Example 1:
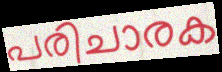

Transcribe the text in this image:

പരിചാരക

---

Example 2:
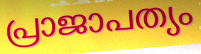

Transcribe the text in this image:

പ്രാജാപത്യം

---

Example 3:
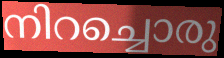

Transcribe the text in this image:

നിറച്ചൊരു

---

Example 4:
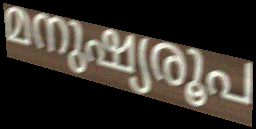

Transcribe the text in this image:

മനുഷ്യരൂപ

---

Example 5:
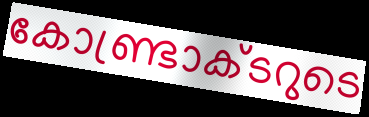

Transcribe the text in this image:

കോണ്ട്രാക്ടറുടെ